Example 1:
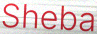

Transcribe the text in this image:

Sheba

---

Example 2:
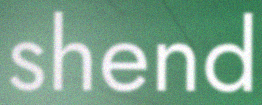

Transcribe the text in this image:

shend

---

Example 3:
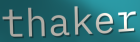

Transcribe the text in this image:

thaker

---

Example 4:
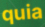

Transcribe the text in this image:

quia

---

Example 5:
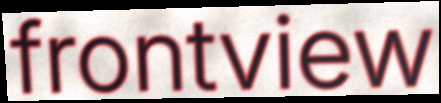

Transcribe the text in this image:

frontview